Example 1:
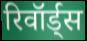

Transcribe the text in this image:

रिवॉर्ड्स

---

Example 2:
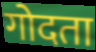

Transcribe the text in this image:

गोदता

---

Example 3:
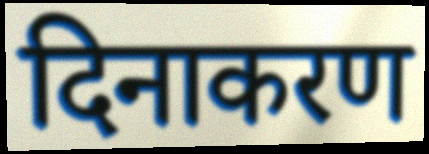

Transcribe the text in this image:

दिनाकरण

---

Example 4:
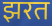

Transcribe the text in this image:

झरत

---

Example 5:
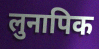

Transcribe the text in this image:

लुनापिक